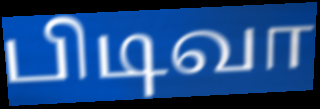
பிடிவா